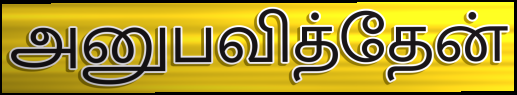
அனுபவித்தேன்